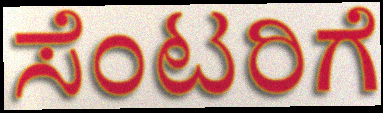
ಸೆಂಟರಿಗೆ